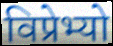
विप्रेभ्यो